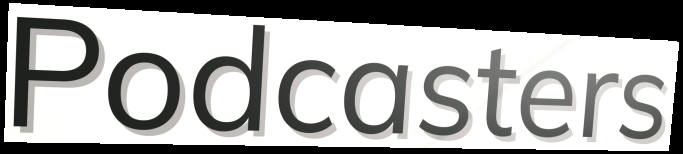
Podcasters